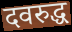
दवरुद्ध